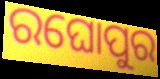
ରଘୋପୁର